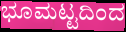
ಭೂಮಟ್ಟದಿಂದ